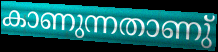
കാണുന്നതാണു്